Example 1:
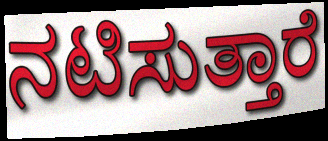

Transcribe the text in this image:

ನಟಿಸುತ್ತಾರೆ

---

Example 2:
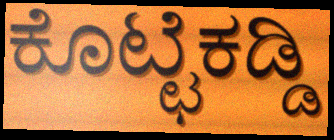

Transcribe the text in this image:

ಕೊಟ್ಟೆಕಡ್ಡಿ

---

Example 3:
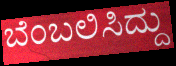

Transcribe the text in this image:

ಬೆಂಬಲಿಸಿದ್ದು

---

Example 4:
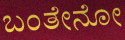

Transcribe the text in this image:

ಬಂತೇನೋ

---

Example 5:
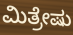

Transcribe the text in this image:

ಮಿತ್ರೇಷು